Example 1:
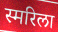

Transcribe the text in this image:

स्मरिला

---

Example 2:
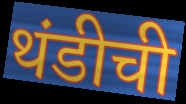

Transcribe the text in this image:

थंडीची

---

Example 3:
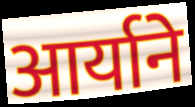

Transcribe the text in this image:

आर्याने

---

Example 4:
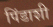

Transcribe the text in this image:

पिंडाशी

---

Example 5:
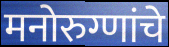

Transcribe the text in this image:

मनोरुग्णांचे